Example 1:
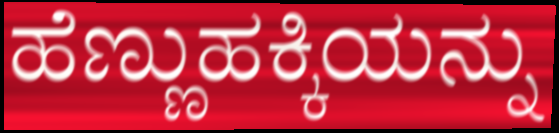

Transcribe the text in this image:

ಹೆಣ್ಣುಹಕ್ಕಿಯನ್ನು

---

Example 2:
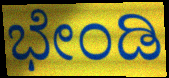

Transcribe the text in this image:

ಭೇಂಡಿ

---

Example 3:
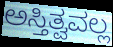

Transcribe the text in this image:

ಅಸ್ತಿತ್ವವಲ್ಲ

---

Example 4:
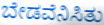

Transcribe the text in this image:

ಬೇಡವೆನಿಸಿತು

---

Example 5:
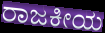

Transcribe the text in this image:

ರಾಜಕೀಯ